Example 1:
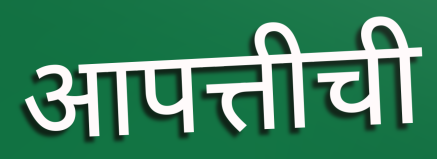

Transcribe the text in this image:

आपत्तीची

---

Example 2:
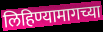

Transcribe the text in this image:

लिहिण्यामागच्या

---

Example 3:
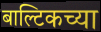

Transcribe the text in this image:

बाल्टिकच्या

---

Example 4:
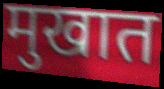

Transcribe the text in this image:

मुखात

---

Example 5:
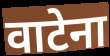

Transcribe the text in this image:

वाटेना